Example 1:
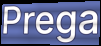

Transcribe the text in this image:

Prega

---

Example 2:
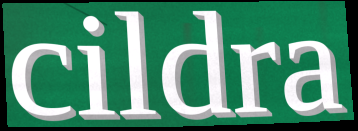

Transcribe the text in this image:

cildra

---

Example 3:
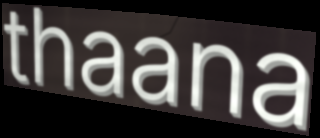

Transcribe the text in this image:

thaana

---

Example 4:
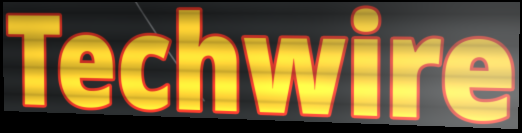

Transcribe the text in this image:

Techwire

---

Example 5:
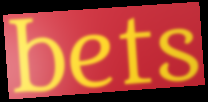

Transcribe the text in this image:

bets